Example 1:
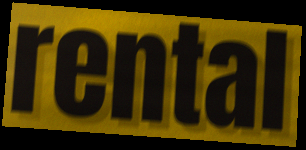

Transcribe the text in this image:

rental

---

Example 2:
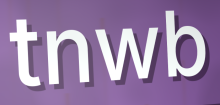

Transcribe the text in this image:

tnwb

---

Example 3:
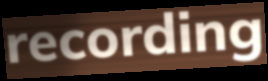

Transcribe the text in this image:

recording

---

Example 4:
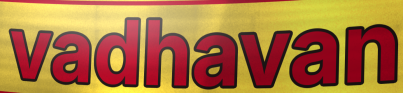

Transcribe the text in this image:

vadhavan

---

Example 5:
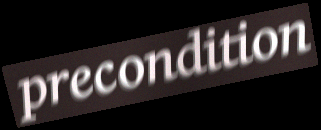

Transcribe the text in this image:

precondition